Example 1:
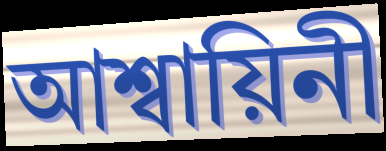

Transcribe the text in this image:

আশ্বায়িনী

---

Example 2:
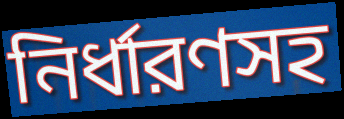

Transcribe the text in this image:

নির্ধারণসহ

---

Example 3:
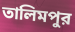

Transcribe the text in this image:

তালিমপুর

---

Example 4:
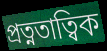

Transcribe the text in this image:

প্রত্নতাত্বিক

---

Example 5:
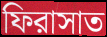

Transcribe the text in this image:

ফিরাসাত